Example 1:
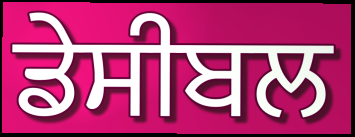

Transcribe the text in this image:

ਡੇਸੀਬਲ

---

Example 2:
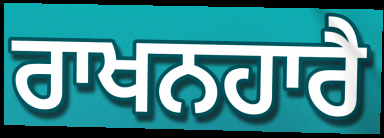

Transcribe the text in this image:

ਰਾਖਨਹਾਰੈ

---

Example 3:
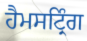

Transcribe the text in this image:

ਹੈਮਸਟ੍ਰਿੰਗ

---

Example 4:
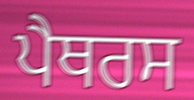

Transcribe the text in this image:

ਪੈਥਰਸ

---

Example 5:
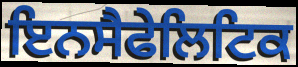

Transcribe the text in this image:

ਇਨਸੈਫੇਲਿਟਿਕ